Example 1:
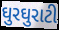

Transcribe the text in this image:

ઘુરઘુરાટી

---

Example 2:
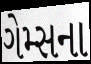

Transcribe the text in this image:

ગેમ્સના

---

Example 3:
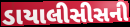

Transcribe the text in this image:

ડાયાલીસીસની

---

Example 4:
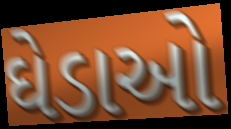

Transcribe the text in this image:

ઘેડાઓ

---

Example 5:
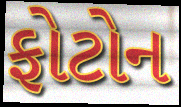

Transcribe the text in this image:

ફોટોન